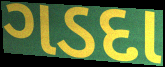
ગડદા